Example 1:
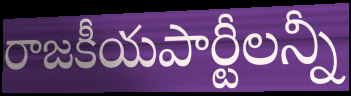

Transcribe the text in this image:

రాజకీయపార్టీలన్నీ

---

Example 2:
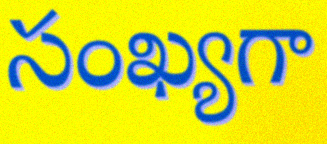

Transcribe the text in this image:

సంఖ్యగా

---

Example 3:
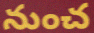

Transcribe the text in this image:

నుంచ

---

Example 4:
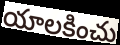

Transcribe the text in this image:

యాలకించు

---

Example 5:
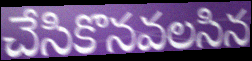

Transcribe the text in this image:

చేసికొనవలసిన